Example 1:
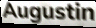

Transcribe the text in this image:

Augustin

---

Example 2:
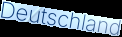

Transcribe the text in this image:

Deutschland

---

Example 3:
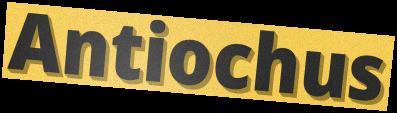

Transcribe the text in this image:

Antiochus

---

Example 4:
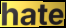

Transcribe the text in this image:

hate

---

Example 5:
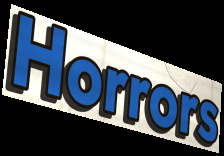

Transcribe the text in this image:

Horrors